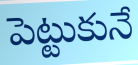
పెట్టుకునే